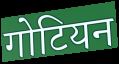
गोटियन